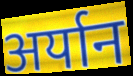
अर्यान